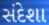
સંદેશા